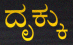
ದೃಕ್ಕು